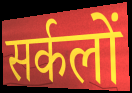
सर्कलों